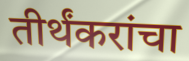
तीर्थंकरांचा